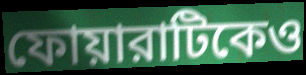
ফোয়ারাটিকেও